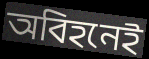
অবিহনেই